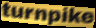
turnpike